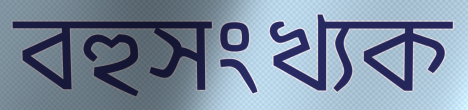
বহুসংখ্যক